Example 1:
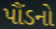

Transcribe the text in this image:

પૌંડનો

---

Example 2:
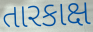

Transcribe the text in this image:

તારકાક્ષ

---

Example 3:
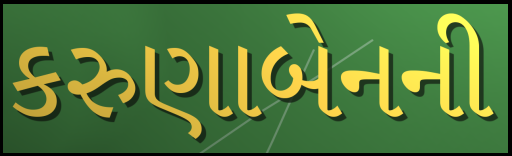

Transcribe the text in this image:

કરુણાબેનની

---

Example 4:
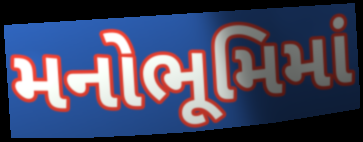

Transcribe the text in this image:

મનોભૂમિમાં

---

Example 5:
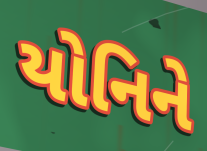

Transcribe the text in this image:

યોનિને